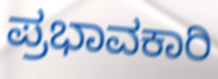
ಪ್ರಭಾವಕಾರಿ